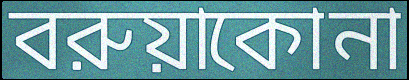
বরুয়াকোনা